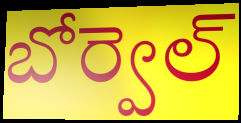
బోర్వెల్